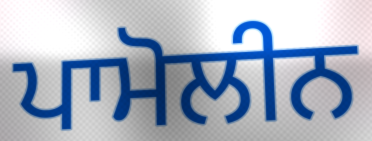
ਪਾਮੋਲੀਨ